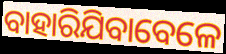
ବାହାରିଯିବାବେଳେ